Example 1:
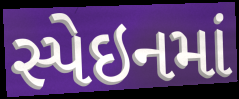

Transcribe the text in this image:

સ્પેઇનમાં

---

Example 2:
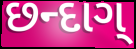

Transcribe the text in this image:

છન્દાગ્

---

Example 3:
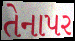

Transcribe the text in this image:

તેનાપર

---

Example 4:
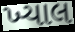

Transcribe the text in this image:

ખ્યાલ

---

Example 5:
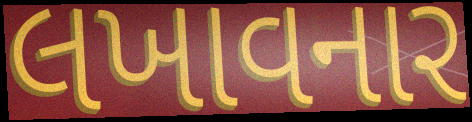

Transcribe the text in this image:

લખાવનાર